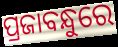
ପ୍ରଜାବନ୍ଧୁରେ